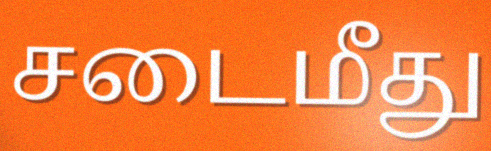
சடைமீது